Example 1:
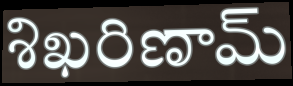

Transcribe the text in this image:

శిఖరిణామ్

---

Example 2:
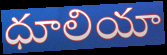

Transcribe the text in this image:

ధూలియా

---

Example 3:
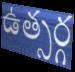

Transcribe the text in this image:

ఉత్సర్గ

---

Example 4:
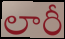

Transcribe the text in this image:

లారీ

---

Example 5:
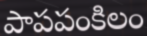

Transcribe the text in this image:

పాపపంకిలం